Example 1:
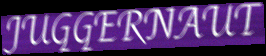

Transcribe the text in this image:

JUGGERNAUT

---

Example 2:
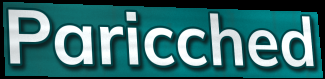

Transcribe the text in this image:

Paricched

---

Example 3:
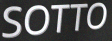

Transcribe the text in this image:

SOTTO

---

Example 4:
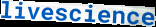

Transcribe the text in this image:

livescience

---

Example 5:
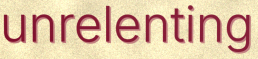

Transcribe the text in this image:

unrelenting